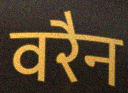
वरैन